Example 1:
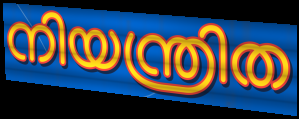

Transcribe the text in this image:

നിയന്ത്രിത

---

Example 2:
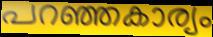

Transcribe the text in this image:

പറഞ്ഞകാര്യം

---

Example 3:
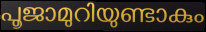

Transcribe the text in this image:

പൂജാമുറിയുണ്ടാകും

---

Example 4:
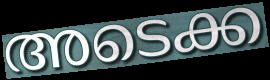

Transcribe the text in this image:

അടെക്ക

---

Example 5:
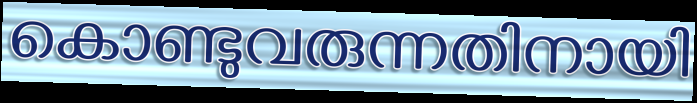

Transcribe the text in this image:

കൊണ്ടുവരുന്നതിനായി